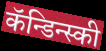
कॅन्डिन्स्की